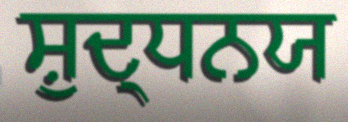
ਸ਼ੁਦ੍ਧਨਯ